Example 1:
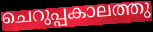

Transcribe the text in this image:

ചെറുപ്പകാലത്തു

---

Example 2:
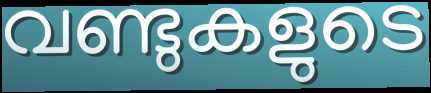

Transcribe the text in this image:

വണ്ടുകളുടെ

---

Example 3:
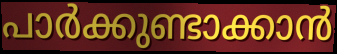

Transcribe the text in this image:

പാർക്കുണ്ടാക്കാൻ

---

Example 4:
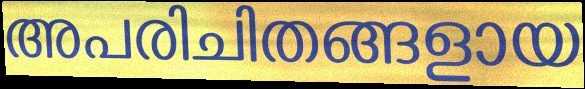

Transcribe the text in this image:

അപരിചിതങ്ങളായ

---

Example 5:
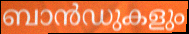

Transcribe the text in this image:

ബാൻഡുകളും